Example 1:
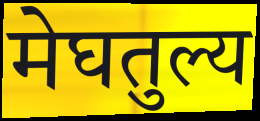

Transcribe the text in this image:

मेघतुल्य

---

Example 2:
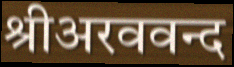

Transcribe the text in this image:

श्रीअरववन्द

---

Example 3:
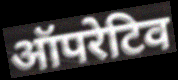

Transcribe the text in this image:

ऑपरेटिव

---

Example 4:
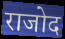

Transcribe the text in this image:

राजोद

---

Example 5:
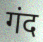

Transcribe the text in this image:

गंद